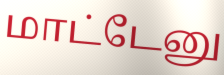
மாட்டேனு